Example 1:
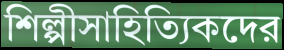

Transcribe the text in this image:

শিল্পীসাহিত্যিকদের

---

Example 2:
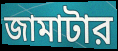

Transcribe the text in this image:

জামাটার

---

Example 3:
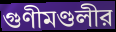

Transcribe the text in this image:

গুণীমণ্ডলীর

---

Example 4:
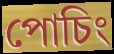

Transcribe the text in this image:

পোচিং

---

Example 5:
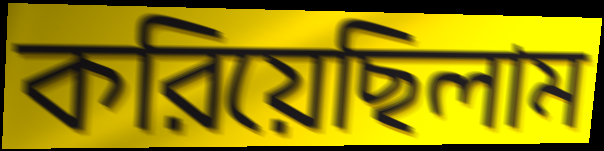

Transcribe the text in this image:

করিয়েছিলাম